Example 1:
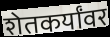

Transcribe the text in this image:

शेतकर्यांवर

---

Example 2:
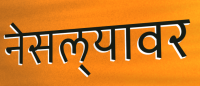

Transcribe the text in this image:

नेसल्यावर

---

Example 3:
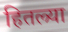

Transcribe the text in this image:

हितल्या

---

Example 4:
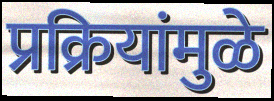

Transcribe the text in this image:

प्रक्रियांमुळे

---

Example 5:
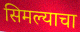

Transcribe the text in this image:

सिमल्याचा